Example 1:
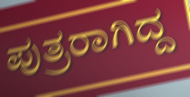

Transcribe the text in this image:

ಪುತ್ರರಾಗಿದ್ದ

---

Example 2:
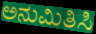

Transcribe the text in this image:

ಅನುಮಿತಿಸಿ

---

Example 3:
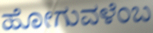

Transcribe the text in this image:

ಹೋಗುವಳೆಂಬ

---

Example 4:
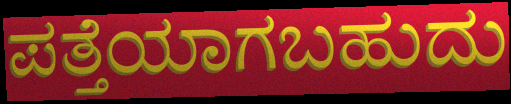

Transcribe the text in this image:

ಪತ್ತೆಯಾಗಬಹುದು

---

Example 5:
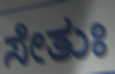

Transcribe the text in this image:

ಸೇತುಃ